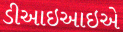
ડીઆઇઆઇએ